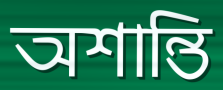
অশান্তি